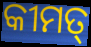
କୀମତ୍